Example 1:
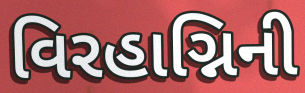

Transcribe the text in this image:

વિરહાગ્નિની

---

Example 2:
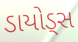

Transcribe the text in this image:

ડાયોડ્સ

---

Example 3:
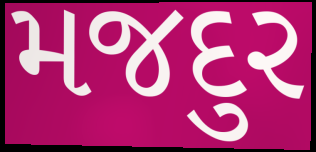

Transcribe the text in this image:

મજદુર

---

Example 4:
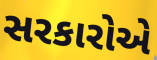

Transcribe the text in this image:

સરકારોએ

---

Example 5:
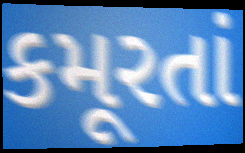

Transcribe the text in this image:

કમૂરતાં